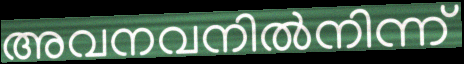
അവനവനിൽനിന്ന്